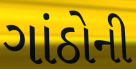
ગાંઠોની